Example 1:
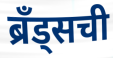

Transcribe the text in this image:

ब्रॅंड्सची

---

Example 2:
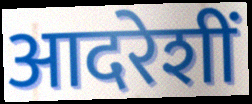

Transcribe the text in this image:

आदरेशीं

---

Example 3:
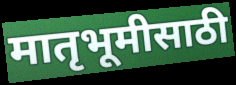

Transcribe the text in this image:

मातृभूमीसाठी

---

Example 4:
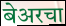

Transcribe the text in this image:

बेअरचा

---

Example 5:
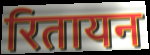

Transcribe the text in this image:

रितायन